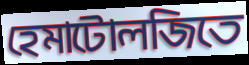
হেমাটোলজিতে